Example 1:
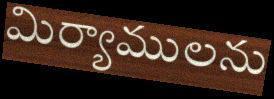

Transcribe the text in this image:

మిర్యాములను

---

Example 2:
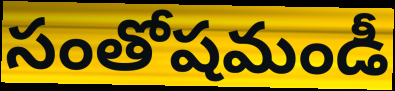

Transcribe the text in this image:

సంతోషమండీ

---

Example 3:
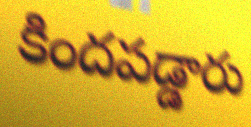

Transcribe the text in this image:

కిందపడ్డారు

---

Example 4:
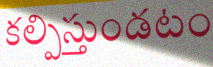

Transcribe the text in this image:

కల్పిస్తుండటం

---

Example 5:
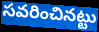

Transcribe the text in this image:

సవరించినట్టు